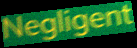
Negligent